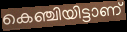
കെഞ്ചിയിട്ടാണ്